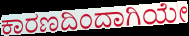
ಕಾರಣದಿಂದಾಗಿಯೇ